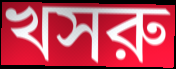
খসরু